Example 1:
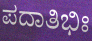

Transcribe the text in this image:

ಪದಾತಿಭಿಃ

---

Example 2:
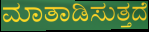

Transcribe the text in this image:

ಮಾತಾಡಿಸುತ್ತದೆ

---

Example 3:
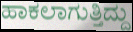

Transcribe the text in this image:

ಹಾಕಲಾಗುತ್ತಿದ್ದು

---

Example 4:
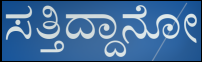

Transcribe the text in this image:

ಸತ್ತಿದ್ದಾನೋ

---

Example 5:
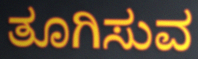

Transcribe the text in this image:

ತೂಗಿಸುವ